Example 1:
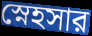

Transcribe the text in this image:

স্নেহসার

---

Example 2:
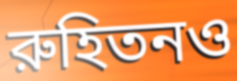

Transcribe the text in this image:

রুহিতনও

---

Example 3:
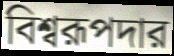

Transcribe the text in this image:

বিশ্বরূপদার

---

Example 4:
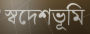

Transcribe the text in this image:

স্বদেশভূমি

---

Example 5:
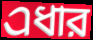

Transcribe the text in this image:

এধার